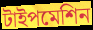
টাইপমেশিন